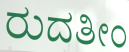
ರುದತೀಂ